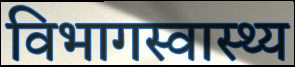
विभागस्वास्थ्य